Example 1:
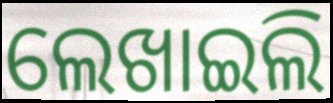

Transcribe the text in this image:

ଲେଖାଇଲି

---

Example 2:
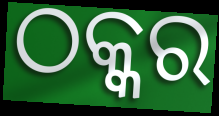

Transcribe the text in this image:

ଠକ୍କର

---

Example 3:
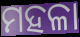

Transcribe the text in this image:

ମହଳା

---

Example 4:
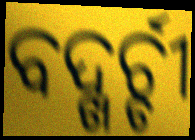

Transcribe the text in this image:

ବଦ୍ଖର୍ଚ୍ଚୀ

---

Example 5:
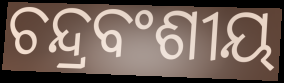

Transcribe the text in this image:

ଚନ୍ଦ୍ରବଂଶୀୟ